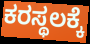
ಕರಸ್ಥಲಕ್ಕೆ